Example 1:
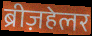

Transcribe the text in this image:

ब्रीज़हेलर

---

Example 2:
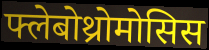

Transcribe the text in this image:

फ्लेबोथ्रोमोसिस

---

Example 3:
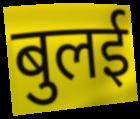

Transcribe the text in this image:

बुलई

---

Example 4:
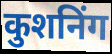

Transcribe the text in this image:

कुशनिंग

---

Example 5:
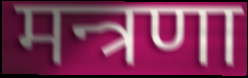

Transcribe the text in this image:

मन्त्रणा